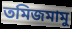
তমিজমামু